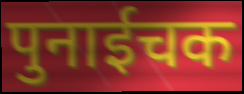
पुनाईचक